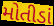
મોતીડાં